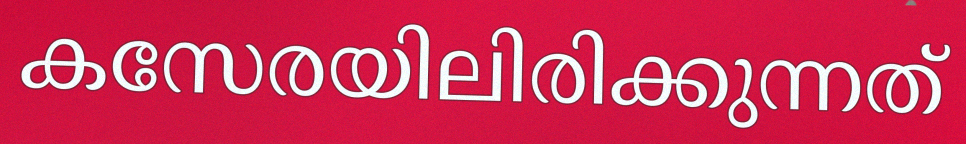
കസേരയിലിരിക്കുന്നത്